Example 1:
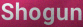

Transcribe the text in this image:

Shogun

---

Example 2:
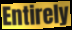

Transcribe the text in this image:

Entirely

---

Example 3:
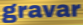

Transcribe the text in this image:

gravar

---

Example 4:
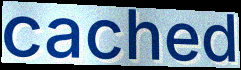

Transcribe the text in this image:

cached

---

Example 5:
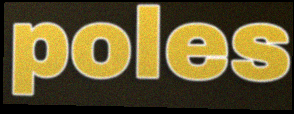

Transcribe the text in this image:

poles